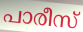
പാരീസ്